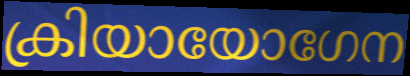
ക്രിയായോഗേന